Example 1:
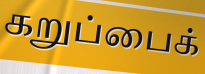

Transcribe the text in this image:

கறுப்பைக்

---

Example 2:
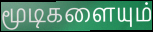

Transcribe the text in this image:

மூடிகளையும்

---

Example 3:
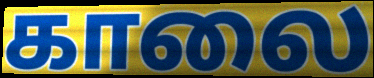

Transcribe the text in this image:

காலை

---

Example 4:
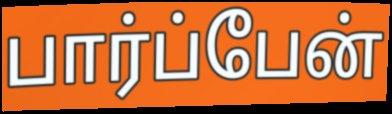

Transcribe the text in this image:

பார்ப்பேன்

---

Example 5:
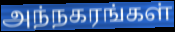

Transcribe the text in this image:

அந்நகரங்கள்